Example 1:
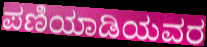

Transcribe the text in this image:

ಪಣಿಯಾಡಿಯವರ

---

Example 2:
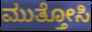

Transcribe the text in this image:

ಮುತ್ತೋಸಿ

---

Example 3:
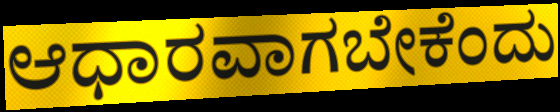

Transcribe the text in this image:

ಆಧಾರವಾಗಬೇಕೆಂದು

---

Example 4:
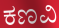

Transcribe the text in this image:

ಕಣವಿ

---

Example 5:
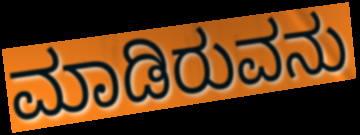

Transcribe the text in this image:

ಮಾಡಿರುವನು